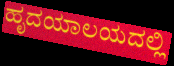
ಹೃದಯಾಲಯದಲ್ಲಿ